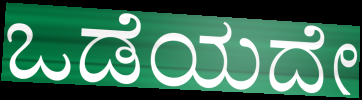
ಒಡೆಯದೇ